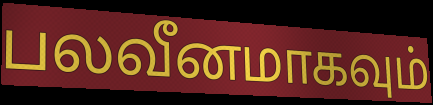
பலவீனமாகவும்